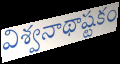
విశ్వనాథాష్టకం